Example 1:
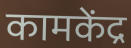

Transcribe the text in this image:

कामकेंद्र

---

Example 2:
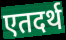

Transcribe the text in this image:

एतदर्थ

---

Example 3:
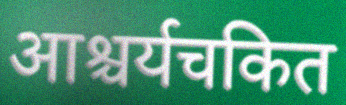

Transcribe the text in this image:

आश्चर्यचकित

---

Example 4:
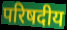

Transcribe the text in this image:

परिषदीय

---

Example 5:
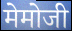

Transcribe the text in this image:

मेमोजी